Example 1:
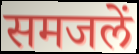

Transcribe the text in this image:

समजलें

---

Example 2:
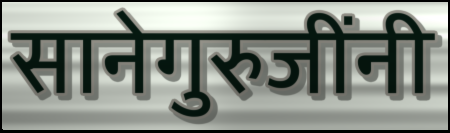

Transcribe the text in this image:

सानेगुरुजींनी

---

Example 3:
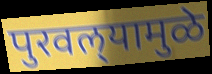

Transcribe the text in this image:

पुरवल्यामुळे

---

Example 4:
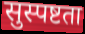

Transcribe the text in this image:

सुस्पष्टता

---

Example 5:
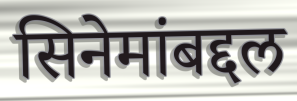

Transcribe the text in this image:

सिनेमांबद्दल